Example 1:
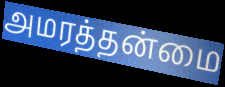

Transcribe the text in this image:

அமரத்தன்மை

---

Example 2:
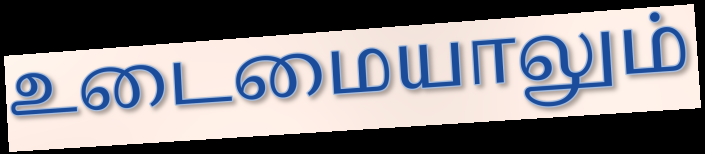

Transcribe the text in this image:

உடைமையாலும்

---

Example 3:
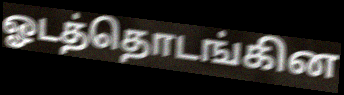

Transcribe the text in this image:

ஓடத்தொடங்கின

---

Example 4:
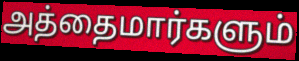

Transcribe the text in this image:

அத்தைமார்களும்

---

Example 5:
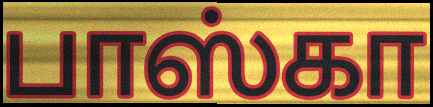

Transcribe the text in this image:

பாஸ்கா